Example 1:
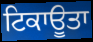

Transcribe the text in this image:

ਟਿਕਾਊਤਾ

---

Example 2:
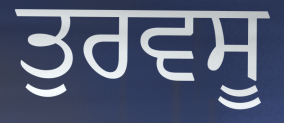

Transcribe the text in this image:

ਤੁਰਵਸੂ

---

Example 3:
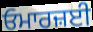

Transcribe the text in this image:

ਓਮਾਰਜ਼ਈ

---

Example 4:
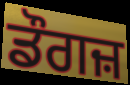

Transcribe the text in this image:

ਡੌਗਜ਼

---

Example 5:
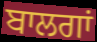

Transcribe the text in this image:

ਬਾਲਗਾਂ